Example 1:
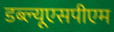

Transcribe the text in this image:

डब्ल्यूएसपीएम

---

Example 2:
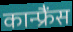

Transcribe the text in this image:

कान्फ्रैंस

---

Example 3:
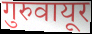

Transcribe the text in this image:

गुरुवायूर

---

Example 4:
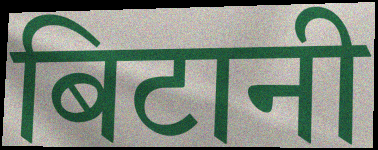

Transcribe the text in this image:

बिटानी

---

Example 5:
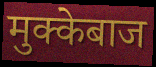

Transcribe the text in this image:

मुक्केबाज